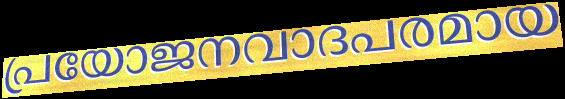
പ്രയോജനവാദപരമായ